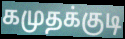
கமுதக்குடி